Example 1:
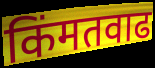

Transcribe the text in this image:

किंमतवाढ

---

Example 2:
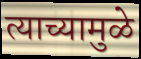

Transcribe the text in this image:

त्याच्यामुळे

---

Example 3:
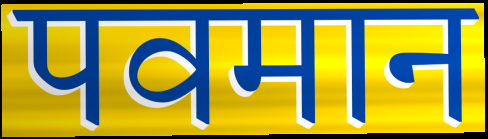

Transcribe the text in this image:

पवमान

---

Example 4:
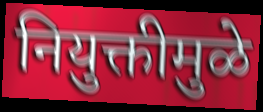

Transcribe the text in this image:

नियुक्तीमुळे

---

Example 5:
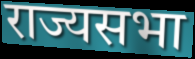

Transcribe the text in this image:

राज्यसभा